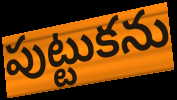
పుట్టుకను